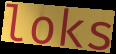
loks